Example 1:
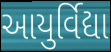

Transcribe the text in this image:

આયુર્વિદ્યા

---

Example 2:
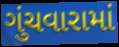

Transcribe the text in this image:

ગુંચવારામાં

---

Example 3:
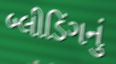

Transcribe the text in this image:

બ્લીડિંગનું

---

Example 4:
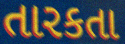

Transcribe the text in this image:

તારકતા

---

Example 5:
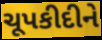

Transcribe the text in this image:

ચૂપકીદીને